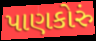
પાણકોરું